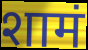
शामं